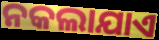
ନକଲାଯାଏ